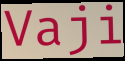
Vaji